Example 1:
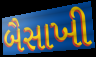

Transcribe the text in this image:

બૈસાખી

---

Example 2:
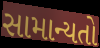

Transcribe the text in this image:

સામાન્યતો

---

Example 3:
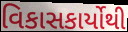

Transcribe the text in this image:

વિકાસકાર્યોથી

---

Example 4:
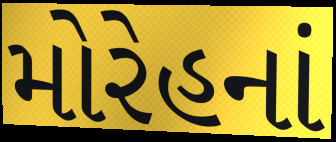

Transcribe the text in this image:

મોરેહનાં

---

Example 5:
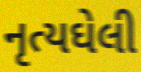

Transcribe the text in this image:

નૃત્યઘેલી